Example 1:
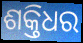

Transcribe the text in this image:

ଶକ୍ତିଧର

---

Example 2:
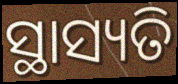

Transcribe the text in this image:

ସ୍ଥାସ୍ୟତି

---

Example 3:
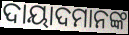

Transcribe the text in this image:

ଦାୟାଦମାନଙ୍କ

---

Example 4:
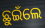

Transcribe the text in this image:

ଛୁଇଁଲେ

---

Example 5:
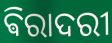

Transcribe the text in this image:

ଵିରାଦରୀ